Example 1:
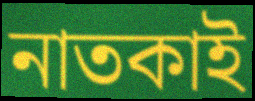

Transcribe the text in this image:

নাতকাই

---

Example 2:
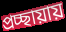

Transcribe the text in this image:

প্রচ্ছায়ায়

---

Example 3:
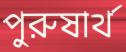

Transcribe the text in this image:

পুরুষার্থ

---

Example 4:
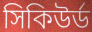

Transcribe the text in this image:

সিকিউর্ড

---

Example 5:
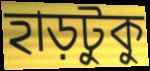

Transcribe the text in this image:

হাড়টুকু